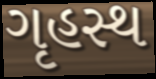
ગૃહસ્થ